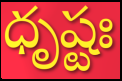
ధృష్టః